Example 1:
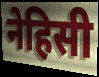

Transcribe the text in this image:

नेहिसी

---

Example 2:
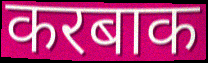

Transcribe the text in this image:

करबाक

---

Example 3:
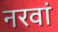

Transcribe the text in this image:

नरवां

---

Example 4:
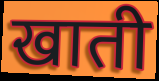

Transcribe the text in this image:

खाती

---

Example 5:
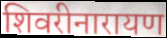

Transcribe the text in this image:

शिवरीनारायण